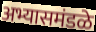
अभ्यासमंडळे